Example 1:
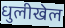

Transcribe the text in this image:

धुलीखेल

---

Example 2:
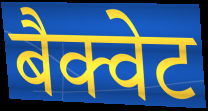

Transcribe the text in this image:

बैक्वेट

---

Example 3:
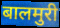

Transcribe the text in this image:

बालमुरी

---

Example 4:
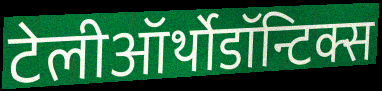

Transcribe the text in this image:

टेलीऑर्थोडॉन्टिक्स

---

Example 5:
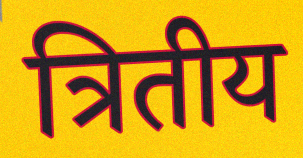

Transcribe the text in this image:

त्रितीय